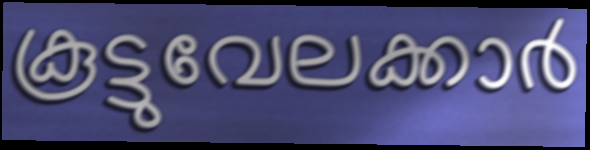
കൂട്ടുവേലക്കാർ